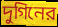
দুগিনের